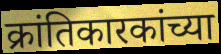
क्रांतिकारकांच्या